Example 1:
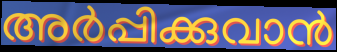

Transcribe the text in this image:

അർപ്പിക്കുവാൻ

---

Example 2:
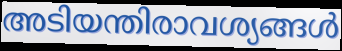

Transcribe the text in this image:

അടിയന്തിരാവശ്യങ്ങൾ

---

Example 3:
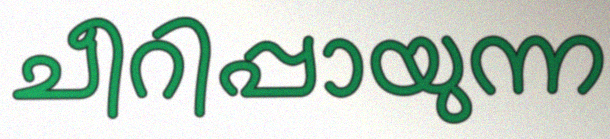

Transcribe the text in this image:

ചീറിപ്പായുന്ന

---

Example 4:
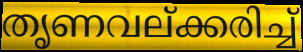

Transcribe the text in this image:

തൃണവല്ക്കരിച്ച്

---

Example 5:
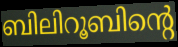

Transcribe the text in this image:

ബിലിറൂബിന്റെ